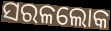
ସରଳଲୋକ